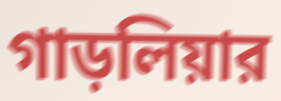
গাড়লিয়ার